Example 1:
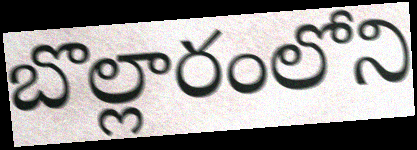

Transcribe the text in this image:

బొల్లారంలోని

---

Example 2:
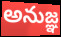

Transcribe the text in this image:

అనుజ్ఞ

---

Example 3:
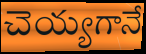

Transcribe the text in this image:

చెయ్యగానే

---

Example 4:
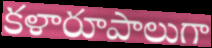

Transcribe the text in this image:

కళారూపాలుగా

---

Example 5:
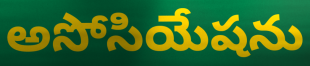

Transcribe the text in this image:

అసోసియేషను